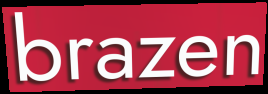
brazen